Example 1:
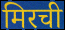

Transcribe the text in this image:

मिरची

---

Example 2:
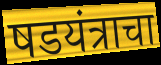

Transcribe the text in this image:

षडयंत्राचा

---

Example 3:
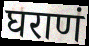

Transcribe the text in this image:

घराणं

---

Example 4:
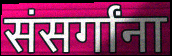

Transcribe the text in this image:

संसर्गांना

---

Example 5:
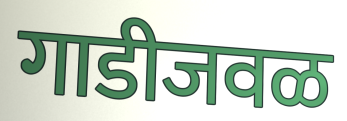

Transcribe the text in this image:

गाडीजवळ